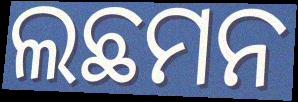
ଲଛମନ